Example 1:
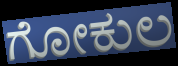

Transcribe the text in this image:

ಗೋಕುಲ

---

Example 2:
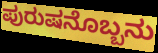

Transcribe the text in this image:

ಪುರುಷನೊಬ್ಬನು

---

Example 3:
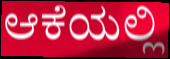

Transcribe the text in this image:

ಆಕೆಯಲ್ಲಿ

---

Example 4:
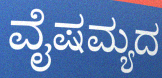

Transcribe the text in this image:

ವೈಷಮ್ಯದ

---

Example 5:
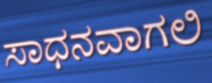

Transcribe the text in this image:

ಸಾಧನವಾಗಲಿ